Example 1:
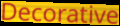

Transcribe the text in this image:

Decorative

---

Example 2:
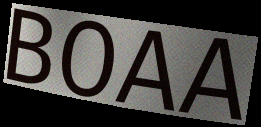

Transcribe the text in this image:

BOAA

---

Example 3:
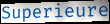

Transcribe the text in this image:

Superieure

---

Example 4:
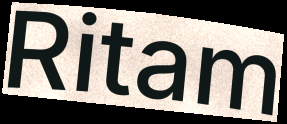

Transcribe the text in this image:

Ritam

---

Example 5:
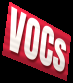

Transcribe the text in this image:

VOCs